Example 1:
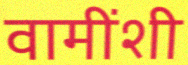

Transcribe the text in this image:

वामींशी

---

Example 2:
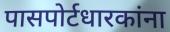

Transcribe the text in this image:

पासपोर्टधारकांना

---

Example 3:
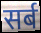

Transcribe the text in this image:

सर्ब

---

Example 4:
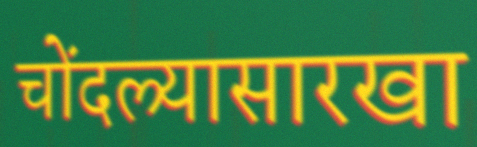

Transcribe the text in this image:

चोंदल्यासारखा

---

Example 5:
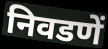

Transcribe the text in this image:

निवडणें